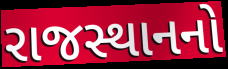
રાજસ્થાનનો